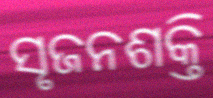
ସୃଜନଶକ୍ତି